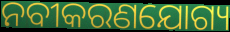
ନବୀକରଣଯୋଗ୍ୟ